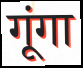
गूंगा